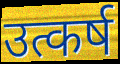
उत्कर्ष